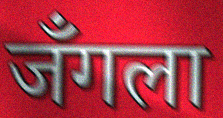
जँगला